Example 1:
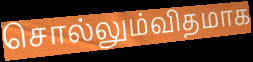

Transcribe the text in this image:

சொல்லும்விதமாக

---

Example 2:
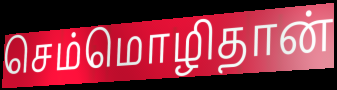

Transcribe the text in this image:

செம்மொழிதான்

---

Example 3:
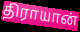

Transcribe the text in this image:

திராயான்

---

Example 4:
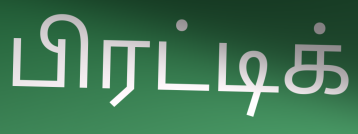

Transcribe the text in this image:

பிரட்டிக்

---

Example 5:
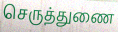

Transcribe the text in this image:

செருத்துணை